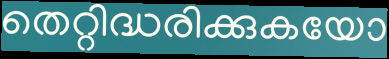
തെറ്റിദ്ധരിക്കുകയോ